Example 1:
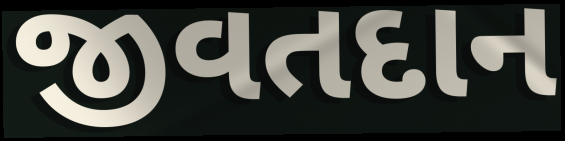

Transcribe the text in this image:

જીવતદાન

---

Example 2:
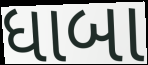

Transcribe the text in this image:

ધાબા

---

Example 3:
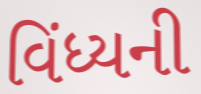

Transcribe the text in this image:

વિંધ્યની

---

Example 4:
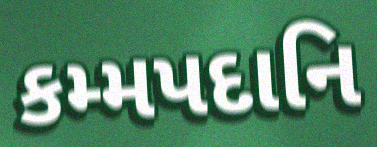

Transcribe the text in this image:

કમ્મપદાનિ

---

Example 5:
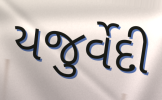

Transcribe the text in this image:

યજુર્વેદી